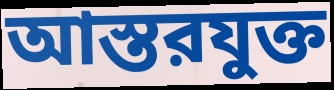
আস্তরযুক্ত